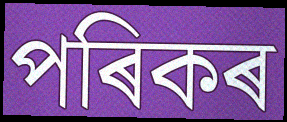
পৰিকৰ